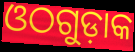
ଓଠଗୁଡ଼ାକ